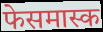
फेसमास्क